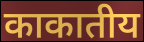
काकातीय